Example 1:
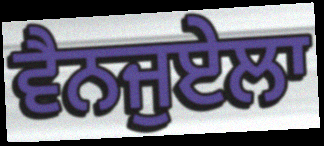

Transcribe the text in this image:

ਵੈਨਜੁਏਲਾ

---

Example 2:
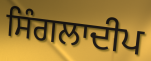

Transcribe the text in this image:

ਸਿੰਗਲਾਦੀਪ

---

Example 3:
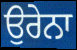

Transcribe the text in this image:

ਉਰੇਨਾ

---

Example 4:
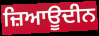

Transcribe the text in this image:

ਜ਼ਿਆਊਦੀਨ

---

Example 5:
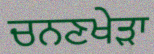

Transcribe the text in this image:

ਚਨਣਖੇੜਾ